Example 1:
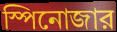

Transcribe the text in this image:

স্পিনোজার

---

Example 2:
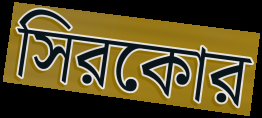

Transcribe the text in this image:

সিরকোর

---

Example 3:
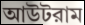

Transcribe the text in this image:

আউটরাম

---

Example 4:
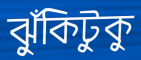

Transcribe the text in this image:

ঝুঁকিটুকু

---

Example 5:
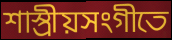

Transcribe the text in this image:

শাস্ত্রীয়সংগীতে